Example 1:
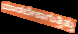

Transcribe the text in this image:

ಮಾಡಬೇಕಾಗುತ್ತಿತ್ತು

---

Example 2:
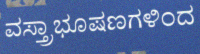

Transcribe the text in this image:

ವಸ್ತ್ರಾಭೂಷಣಗಳಿಂದ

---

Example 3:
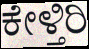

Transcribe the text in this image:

ಕೇಳ್ತಿರಿ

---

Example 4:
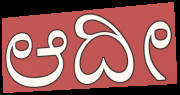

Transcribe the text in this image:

ಆದೀ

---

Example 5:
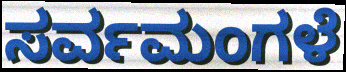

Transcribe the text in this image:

ಸರ್ವಮಂಗಳೆ